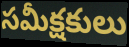
సమీక్షకులు